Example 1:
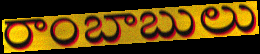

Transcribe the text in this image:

రాంబాబులు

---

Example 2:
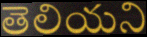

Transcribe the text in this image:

తెలియని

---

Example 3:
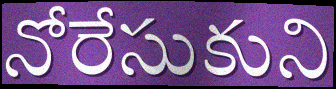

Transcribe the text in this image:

నోరేసుకుని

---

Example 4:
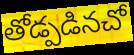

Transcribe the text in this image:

తోడ్పడినచో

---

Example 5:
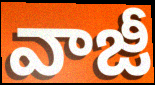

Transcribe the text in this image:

వాజీ